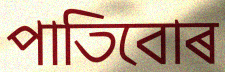
পাতিবোৰ